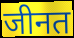
जीनत